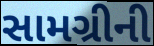
સામગ્રીની